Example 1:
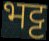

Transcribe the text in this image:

भट्ट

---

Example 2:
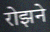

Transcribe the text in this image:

रोझने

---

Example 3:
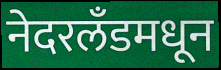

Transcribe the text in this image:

नेदरलँडमधून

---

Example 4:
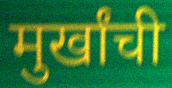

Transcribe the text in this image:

मुर्खांची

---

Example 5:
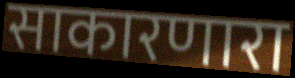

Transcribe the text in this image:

साकारणारा